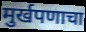
मुर्खपणाचा